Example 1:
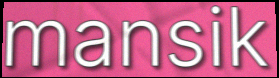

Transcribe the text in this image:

mansik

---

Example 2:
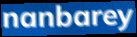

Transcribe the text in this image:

nanbarey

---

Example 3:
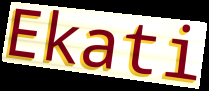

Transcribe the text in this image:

Ekati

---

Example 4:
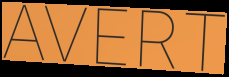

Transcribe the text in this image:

AVERT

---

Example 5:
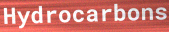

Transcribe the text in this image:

Hydrocarbons